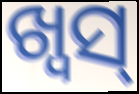
ଖ୍ୱସ୍